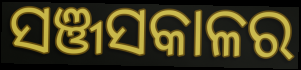
ସଞ୍ଜସକାଳର